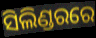
ସିଲିଣ୍ଡରରେ